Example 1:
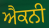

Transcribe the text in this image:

ਐਕਨੀ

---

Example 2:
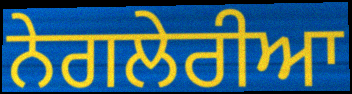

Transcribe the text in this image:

ਨੇਗਲੇਰੀਆ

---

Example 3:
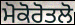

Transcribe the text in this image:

ਮੋਕੋਰੋਤਲੋ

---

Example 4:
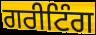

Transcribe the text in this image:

ਗਰੀਟਿੰਗ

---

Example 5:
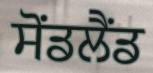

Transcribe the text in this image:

ਸੋਂਡਲੈਂਡ